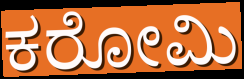
ಕರೋಮಿ